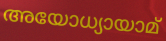
അയോധ്യായാമ്